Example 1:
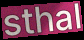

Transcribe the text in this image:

sthal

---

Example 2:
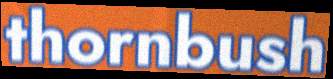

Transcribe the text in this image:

thornbush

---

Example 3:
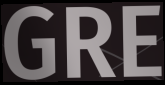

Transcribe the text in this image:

GRE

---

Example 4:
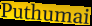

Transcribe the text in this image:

Puthumai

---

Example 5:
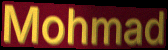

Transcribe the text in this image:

Mohmad